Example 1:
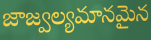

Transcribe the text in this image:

జాజ్వల్యమానమైన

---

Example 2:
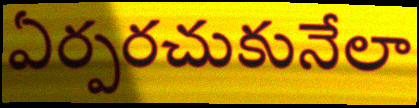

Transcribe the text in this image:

ఏర్పరచుకునేలా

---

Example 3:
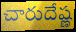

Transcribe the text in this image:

చారుదేష్ణ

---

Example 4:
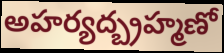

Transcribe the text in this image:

అహర్యద్బ్రహ్మణో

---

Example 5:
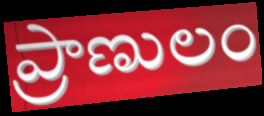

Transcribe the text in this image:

ప్రాణులం